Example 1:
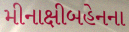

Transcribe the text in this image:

મીનાક્ષીબહેનના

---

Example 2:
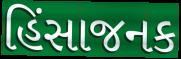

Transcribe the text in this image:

હિંસાજનક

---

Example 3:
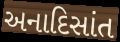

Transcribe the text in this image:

અનાદિસાંત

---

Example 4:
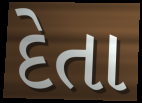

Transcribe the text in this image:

દેતા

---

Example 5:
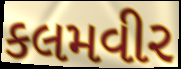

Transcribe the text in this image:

કલમવીર